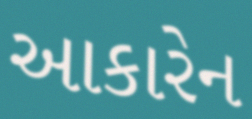
આકારેન